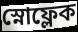
স্নোফ্লেক